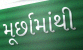
મૂર્છામાંથી